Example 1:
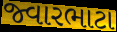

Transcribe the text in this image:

જ્વારભાટા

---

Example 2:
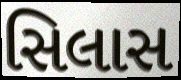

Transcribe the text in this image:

સિલાસ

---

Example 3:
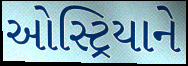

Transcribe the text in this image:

ઓસ્ટ્રિયાને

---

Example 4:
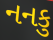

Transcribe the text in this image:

નનકુ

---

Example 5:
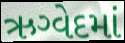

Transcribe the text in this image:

ઋગ્વેદમાં